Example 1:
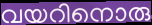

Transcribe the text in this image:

വയറിനൊരു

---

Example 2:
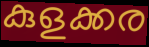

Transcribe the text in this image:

കുളക്കര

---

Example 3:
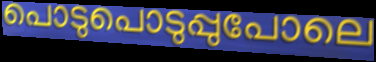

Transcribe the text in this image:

പൊടുപൊടുപ്പുപോലെ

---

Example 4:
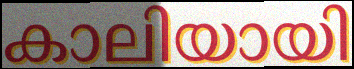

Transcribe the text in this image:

കാലിയായി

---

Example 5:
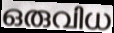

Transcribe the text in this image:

ഒരുവിധ